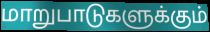
மாறுபாடுகளுக்கும்